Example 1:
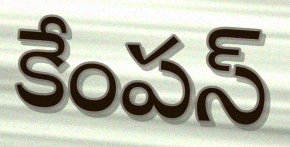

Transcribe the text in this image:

కేంపస్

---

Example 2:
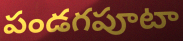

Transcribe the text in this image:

పండగపూటా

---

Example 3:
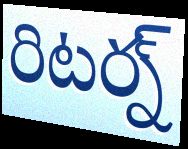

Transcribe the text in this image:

రిటర్న్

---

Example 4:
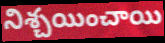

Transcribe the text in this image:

నిశ్చయించాయి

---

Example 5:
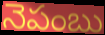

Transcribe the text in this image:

నెపంబు